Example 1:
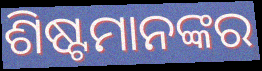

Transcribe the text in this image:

ଶିଷ୍ଟମାନଙ୍କର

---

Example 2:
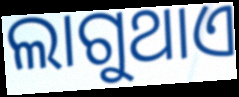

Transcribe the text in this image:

ଲାଗୁଥାଏ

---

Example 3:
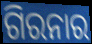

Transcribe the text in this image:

ଗିରନାର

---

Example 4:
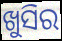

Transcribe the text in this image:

ଖୁସିର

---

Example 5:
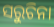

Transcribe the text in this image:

ସରୁଚିନା